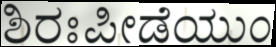
ಶಿರಃಪೀಡೆಯುಂ